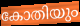
കോതിയും